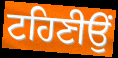
ਟਹਿਣੀਉਂ